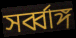
সর্ব্বাঙ্গ